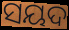
ସୟଦ